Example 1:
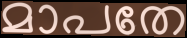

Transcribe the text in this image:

മാപതേ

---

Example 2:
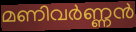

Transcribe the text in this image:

മണിവർണ്ണൻ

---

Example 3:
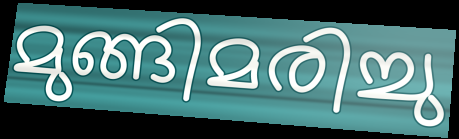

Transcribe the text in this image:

മുങ്ങിമരിച്ചു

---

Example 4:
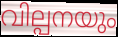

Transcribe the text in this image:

വില്പനയും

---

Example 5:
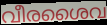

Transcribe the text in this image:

വീരശൈവ